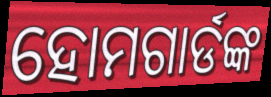
ହୋମଗାର୍ଡଙ୍କ